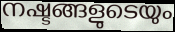
നഷ്ടങ്ങളുടെയും